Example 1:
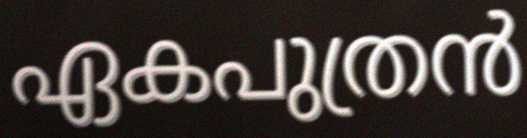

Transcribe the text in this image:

ഏകപുത്രൻ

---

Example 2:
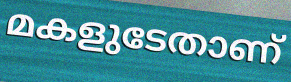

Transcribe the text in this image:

മകളുടേതാണ്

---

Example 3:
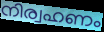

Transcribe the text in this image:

നിര്വഹണം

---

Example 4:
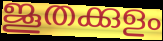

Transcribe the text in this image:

ജൂതക്കുളം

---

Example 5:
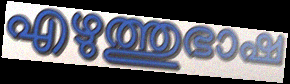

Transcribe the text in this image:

എഴുത്തുഭാഷ